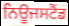
ਨਿਊਜਸਟੈਂਡ